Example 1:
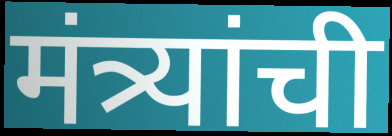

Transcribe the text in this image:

मंत्र्यांची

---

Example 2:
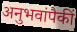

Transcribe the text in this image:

अनुभवांपैकीं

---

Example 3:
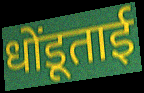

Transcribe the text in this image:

धोंडूताई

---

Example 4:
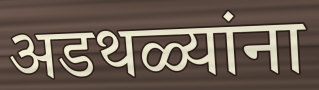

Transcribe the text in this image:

अडथळ्यांना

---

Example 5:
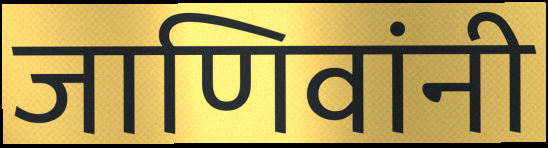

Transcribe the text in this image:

जाणिवांनी